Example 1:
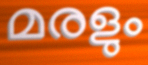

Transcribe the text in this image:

മരളും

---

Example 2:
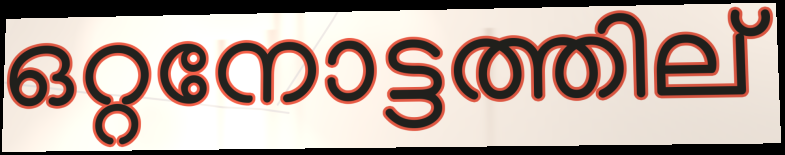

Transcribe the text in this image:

ഒറ്റനോട്ടത്തില്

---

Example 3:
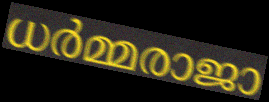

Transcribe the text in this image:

ധർമ്മരാജാ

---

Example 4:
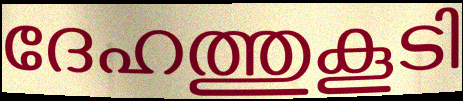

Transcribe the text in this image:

ദേഹത്തുകൂടി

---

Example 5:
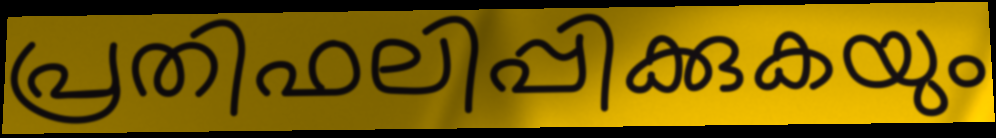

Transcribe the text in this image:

പ്രതിഫലിപ്പിക്കുകയും